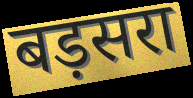
बड़सरा